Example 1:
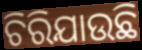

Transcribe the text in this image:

ଚିରିଯାଉଛି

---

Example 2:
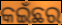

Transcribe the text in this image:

କଇଁଛର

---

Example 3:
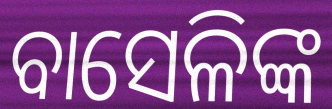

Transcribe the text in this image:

ବାସେଳିଙ୍କ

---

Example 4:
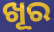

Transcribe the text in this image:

ଖୂର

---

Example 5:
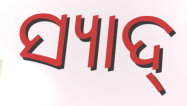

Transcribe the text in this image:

ସ୍ୟାଦ୍